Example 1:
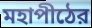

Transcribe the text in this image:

মহাপীঠের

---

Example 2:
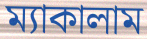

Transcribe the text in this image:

ম্যাকালাম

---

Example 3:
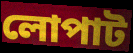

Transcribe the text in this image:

লোপাট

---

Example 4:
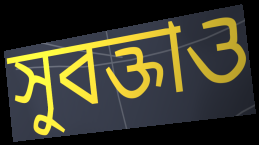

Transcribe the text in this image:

সুবক্তাও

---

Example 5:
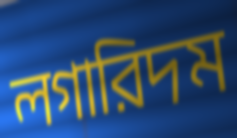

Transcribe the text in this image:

লগারিদম